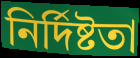
নিৰ্দিষ্টতা